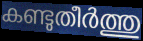
കണ്ടുതീർത്തു